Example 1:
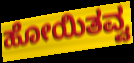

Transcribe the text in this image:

ಹೋಯಿತವ್ವ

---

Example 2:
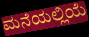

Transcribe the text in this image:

ಮನೆಯಲ್ಲಿಯೆ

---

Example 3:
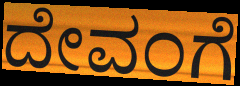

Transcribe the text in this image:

ದೇವಂಗೆ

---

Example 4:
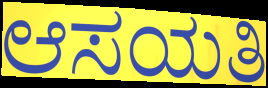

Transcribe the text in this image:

ಆಸಯತಿ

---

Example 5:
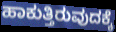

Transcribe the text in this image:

ಹಾಕುತ್ತಿರುವುದಕ್ಕೆ